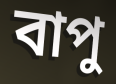
বাপু